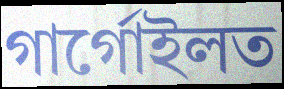
গাৰ্গোইলত